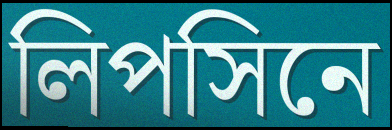
লিপসিনে